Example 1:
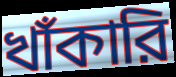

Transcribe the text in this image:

খাঁকারি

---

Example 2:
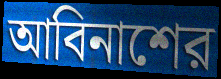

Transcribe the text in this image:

আবিনাশের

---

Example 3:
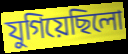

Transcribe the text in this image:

যুগিয়েছিলো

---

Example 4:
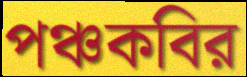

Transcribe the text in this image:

পঞ্চকবির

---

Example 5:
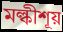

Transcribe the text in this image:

মল্কীশূয়